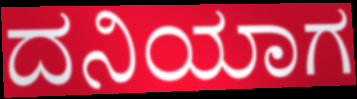
ದನಿಯಾಗ